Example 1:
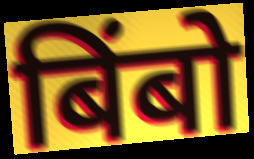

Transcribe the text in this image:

बिंबो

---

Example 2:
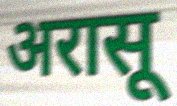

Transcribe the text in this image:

अरासू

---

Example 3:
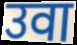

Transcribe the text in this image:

उवा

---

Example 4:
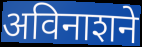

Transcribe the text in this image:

अविनाशने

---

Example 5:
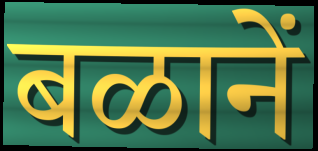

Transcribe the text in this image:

बळानें